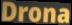
Drona